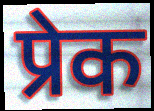
प्रेक